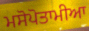
ਮਸੋਪੋਤਾਮੀਆ